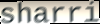
sharri